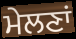
ਮੇਲਣਾਂ